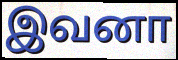
இவனா